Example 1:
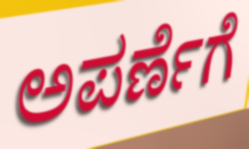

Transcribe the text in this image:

ಅಪರ್ಣೆಗೆ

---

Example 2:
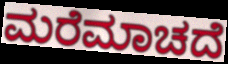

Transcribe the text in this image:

ಮರೆಮಾಚದೆ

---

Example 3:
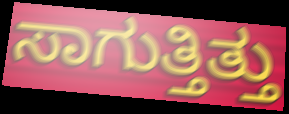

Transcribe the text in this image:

ಸಾಗುತ್ತಿತ್ತು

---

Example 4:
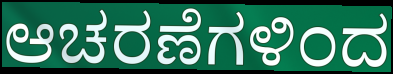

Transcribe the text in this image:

ಆಚರಣೆಗಳಿಂದ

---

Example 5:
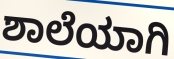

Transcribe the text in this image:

ಶಾಲೆಯಾಗಿ